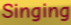
Singing